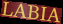
LABIA